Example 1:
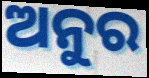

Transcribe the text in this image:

ଅନୁର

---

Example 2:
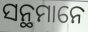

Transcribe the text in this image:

ସନ୍ଥମାନେ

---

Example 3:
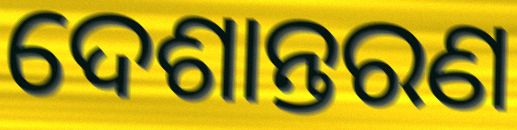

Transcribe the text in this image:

ଦେଶାନ୍ତରଣ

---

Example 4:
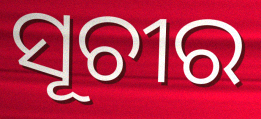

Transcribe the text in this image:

ସୂଚୀର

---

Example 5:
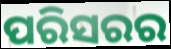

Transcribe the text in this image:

ପରିସରର